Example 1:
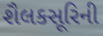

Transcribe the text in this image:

શૈલકસૂરિની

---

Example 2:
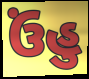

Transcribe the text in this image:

ઉંહુ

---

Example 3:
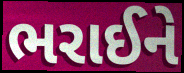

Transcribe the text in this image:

ભરાઈને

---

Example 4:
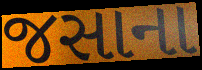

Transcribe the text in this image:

જસાના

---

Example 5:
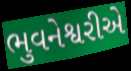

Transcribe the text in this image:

ભુવનેશ્વરીએ